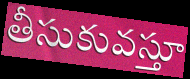
తీసుకువస్తూ